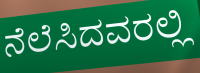
ನೆಲೆಸಿದವರಲ್ಲಿ